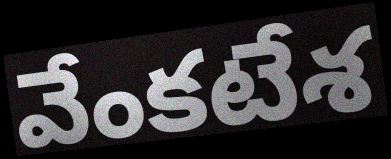
వేంకటేశ